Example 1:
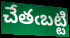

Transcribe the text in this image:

చేతఁబట్టి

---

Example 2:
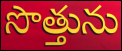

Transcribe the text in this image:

సొత్తును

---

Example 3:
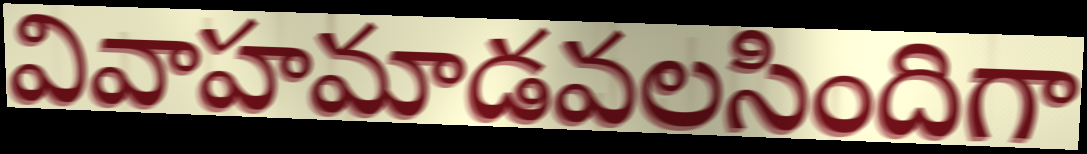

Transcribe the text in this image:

వివాహమాడవలసిందిగా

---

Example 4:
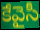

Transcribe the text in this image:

కేవైసీ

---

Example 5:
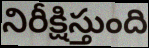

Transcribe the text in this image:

నిరీక్షిస్తుంది